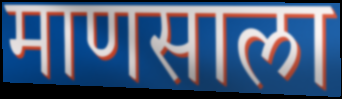
माणसाला